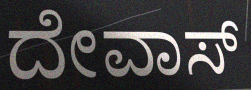
ದೇವಾಸ್